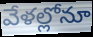
వేళల్లోనూ